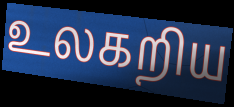
உலகறிய